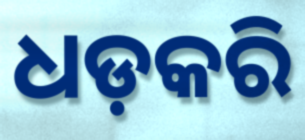
ଧଡ଼କରି